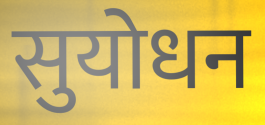
सुयोधन